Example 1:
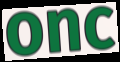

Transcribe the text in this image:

onc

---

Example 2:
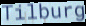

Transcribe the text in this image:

Tilburg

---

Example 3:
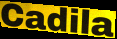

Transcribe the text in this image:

Cadila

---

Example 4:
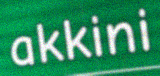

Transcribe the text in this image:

akkini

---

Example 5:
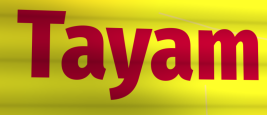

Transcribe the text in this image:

Tayam